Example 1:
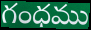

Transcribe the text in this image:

గంధము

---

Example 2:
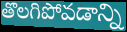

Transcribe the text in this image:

తొలగిపోవడాన్ని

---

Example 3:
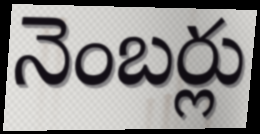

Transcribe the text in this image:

నెంబర్లు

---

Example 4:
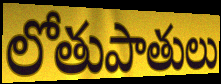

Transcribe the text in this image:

లోతుపాతులు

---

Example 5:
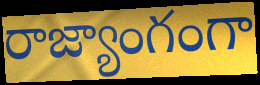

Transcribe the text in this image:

రాజ్యాంగంగా